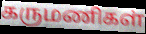
கருமணிகள்